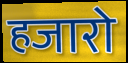
हजारो